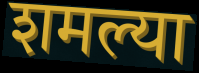
शमल्या